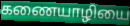
கணையாழியை